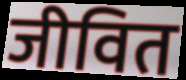
जीवित